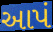
આપં